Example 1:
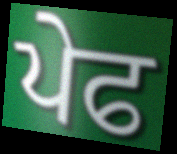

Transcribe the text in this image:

ਪੇਫ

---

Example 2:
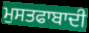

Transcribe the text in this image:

ਮੁਸਤਫਾਬਾਦੀ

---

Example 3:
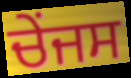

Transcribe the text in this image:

ਚੇਂਜਸ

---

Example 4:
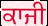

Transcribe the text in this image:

ਕਾਜੀ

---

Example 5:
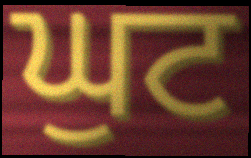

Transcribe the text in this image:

ਘੁਟ